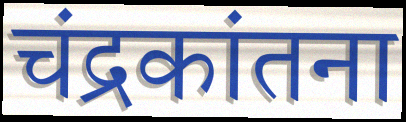
चंद्रकांतना